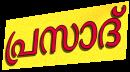
പ്രസാദ്